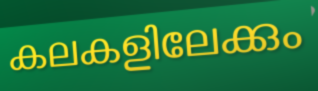
കലകളിലേക്കും